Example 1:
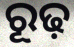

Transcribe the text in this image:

ରୂଢ଼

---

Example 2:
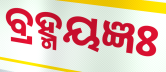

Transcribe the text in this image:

ବ୍ରହ୍ମୟଜ୍ଞଃ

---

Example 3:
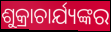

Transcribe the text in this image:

ଶୁକ୍ରାଚାର୍ଯ୍ୟଙ୍କର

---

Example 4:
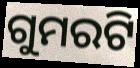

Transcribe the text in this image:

ଗୁମରଟି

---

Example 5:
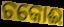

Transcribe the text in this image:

ଚକୋଈ